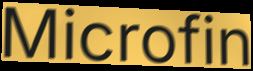
Microfin